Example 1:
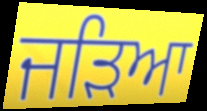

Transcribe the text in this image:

ਜੜਿਆ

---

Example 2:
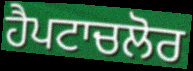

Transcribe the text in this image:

ਹੈਪਟਾਚਲੋਰ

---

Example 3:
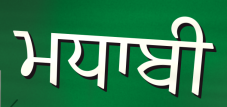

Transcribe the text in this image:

ਮਧਾਬੀ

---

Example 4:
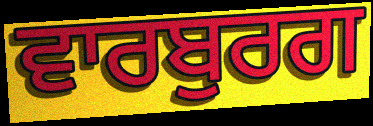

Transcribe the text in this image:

ਵਾਰਬੁਰਗ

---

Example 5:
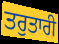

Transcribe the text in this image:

ਤਰੁਤਾਰੀ